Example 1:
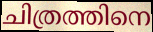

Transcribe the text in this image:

ചിത്രത്തിനെ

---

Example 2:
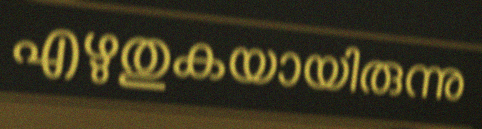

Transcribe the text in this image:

എഴുതുകയായിരുന്നു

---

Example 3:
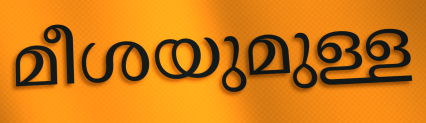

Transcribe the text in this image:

മീശയുമുള്ള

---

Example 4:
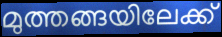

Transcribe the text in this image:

മുത്തങ്ങയിലേക്ക്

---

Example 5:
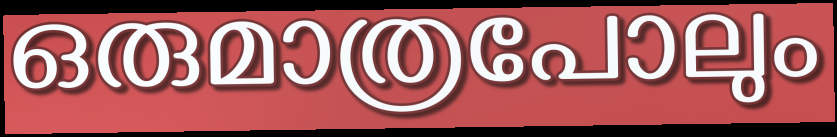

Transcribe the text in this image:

ഒരുമാത്രപോലും